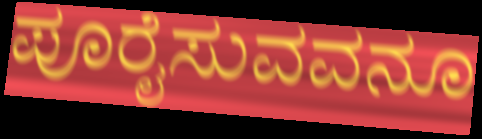
ಪೂರೈಸುವವನೂ